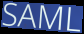
SAML